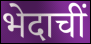
भेदाचीं